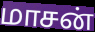
மாசன்